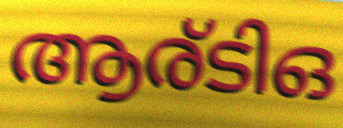
ആര്ടിഒ